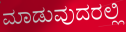
ಮಾಡುವುದರಲ್ಲಿ